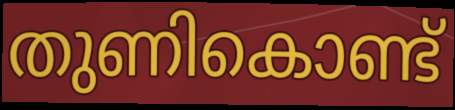
തുണികൊണ്ട്